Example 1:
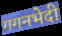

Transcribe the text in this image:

गगनभेदी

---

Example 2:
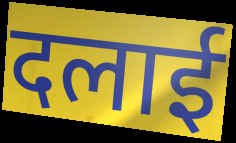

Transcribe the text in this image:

दलाई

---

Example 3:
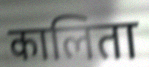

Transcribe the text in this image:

कालिता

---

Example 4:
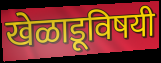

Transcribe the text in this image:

खेळाडूविषयी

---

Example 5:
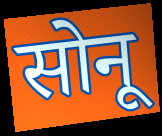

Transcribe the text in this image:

सोनू